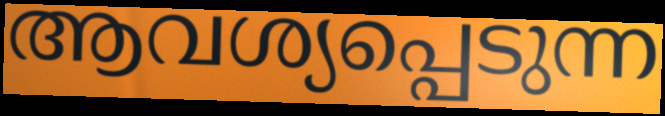
ആവശ്യപ്പെടുന്ന